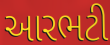
આરભટી